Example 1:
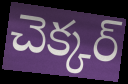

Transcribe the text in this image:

చెక్కర్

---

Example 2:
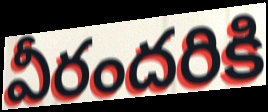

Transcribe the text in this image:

వీరందరికి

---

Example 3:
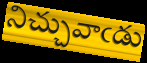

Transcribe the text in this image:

నిచ్చువాఁడు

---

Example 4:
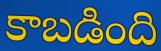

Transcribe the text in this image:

కాబడింది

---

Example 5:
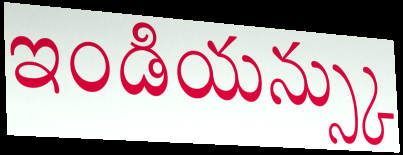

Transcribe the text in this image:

ఇండియన్స్కు